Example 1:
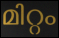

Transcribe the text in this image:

മിറ്റം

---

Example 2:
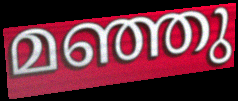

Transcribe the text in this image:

മഞ്ഞു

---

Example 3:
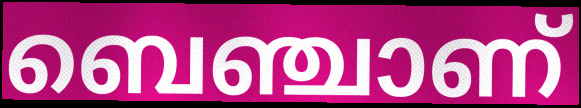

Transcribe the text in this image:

ബെഞ്ചാണ്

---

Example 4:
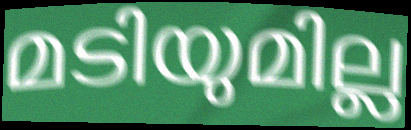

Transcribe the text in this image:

മടിയുമില്ല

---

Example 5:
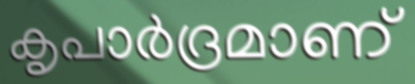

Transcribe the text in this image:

കൃപാർദ്രമാണ്